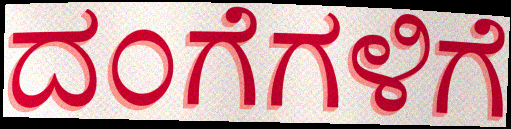
ದಂಗೆಗಳಿಗೆ